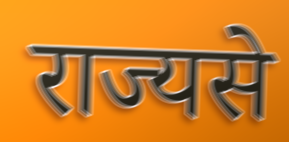
राज्यसे